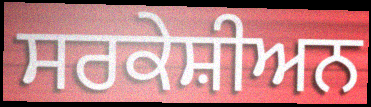
ਸਰਕੇਸ਼ੀਅਨ